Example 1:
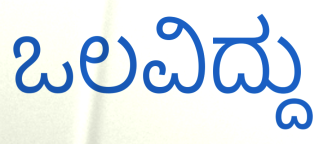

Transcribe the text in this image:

ಒಲವಿದ್ದು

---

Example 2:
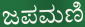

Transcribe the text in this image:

ಜಪಮಣಿ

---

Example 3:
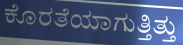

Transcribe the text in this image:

ಕೊರತೆಯಾಗುತ್ತಿತ್ತು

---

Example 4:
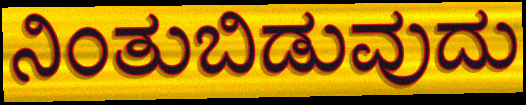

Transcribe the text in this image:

ನಿಂತುಬಿಡುವುದು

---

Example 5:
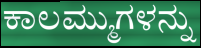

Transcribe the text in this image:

ಕಾಲಮ್ಮುಗಳನ್ನು